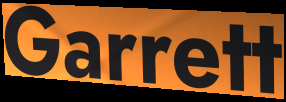
Garrett